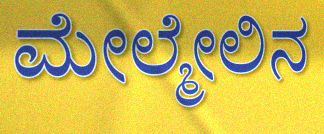
ಮೇಲ್ಮೇಲಿನ